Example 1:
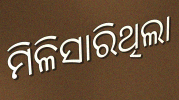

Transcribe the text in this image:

ମିଳିସାରିଥିଲା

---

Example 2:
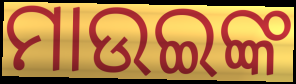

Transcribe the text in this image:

ମାଉଇଙ୍କ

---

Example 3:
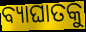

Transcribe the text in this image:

ବ୍ୟାଘାତକୁ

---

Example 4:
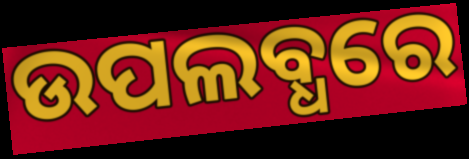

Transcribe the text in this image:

ଉପଲବ୍ଧରେ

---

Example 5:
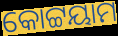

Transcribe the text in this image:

କୋଟ୍ଟୟାମ